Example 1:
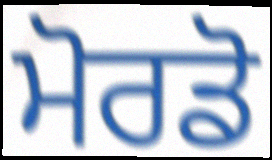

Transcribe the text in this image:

ਮੋਰਡੋ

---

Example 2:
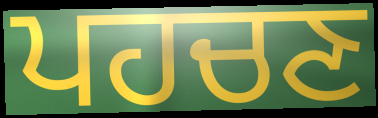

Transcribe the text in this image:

ਪਹਚਣ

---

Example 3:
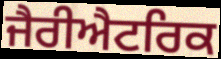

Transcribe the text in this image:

ਜੈਰੀਐਟਰਿਕ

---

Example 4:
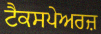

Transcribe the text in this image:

ਟੈਕਸਪੇਅਰਜ਼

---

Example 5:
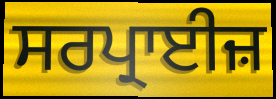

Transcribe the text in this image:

ਸਰਪ੍ਰਾਈਜ਼